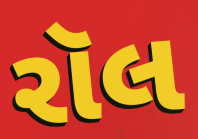
રૉલ